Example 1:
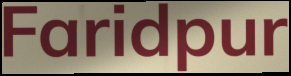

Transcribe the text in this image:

Faridpur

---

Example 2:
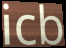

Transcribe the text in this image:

icb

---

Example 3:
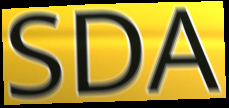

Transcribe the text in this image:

SDA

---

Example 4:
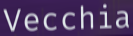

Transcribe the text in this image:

Vecchia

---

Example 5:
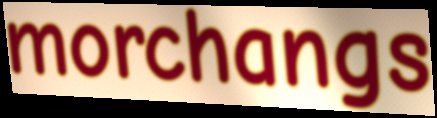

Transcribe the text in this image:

morchangs